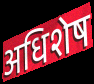
अधिशेष